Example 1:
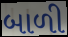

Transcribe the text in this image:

બાળી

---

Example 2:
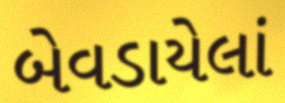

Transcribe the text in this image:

બેવડાયેલાં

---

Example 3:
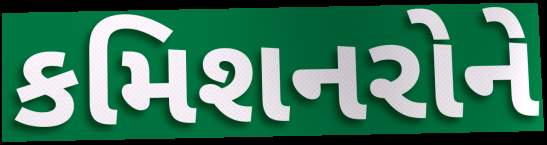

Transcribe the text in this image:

કમિશનરોને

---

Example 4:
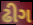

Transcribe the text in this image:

ઢીગ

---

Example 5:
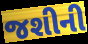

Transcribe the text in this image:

જશીની